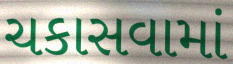
ચકાસવામાં